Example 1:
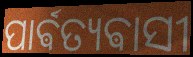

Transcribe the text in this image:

ପାର୍ଵତ୍ୟଵାସୀ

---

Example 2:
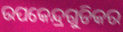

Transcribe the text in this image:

ଉପକେନ୍ଦ୍ରଗୁଡିକର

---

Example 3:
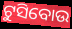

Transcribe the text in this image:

ଟୁସିବୋଉ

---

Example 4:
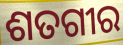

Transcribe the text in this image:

ଶତଗୀର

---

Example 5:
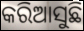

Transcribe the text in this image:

କରିଆସୁଛି